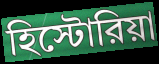
হিস্টোরিয়া